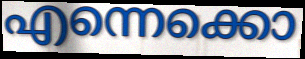
എന്നെക്കൊ